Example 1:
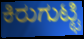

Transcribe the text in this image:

ಕಿರುಗುಟ್ಟಿ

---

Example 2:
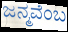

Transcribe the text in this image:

ಜನ್ಮವೆಂಬ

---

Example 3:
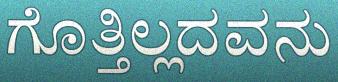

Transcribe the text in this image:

ಗೊತ್ತಿಲ್ಲದವನು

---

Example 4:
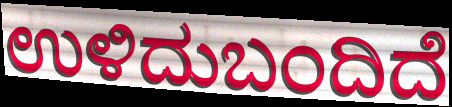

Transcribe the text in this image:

ಉಳಿದುಬಂದಿದೆ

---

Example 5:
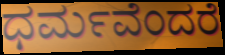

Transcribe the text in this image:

ಧರ್ಮವೆಂದರೆ